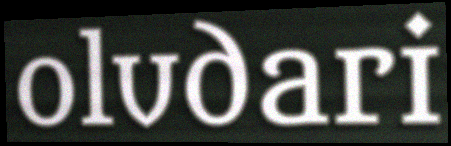
oludari